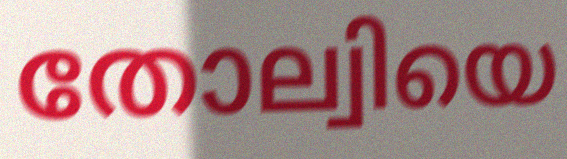
തോല്വിയെ